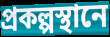
প্রকল্পস্থানে